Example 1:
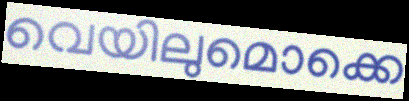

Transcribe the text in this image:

വെയിലുമൊക്കെ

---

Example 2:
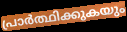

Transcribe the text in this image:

പ്രാർത്ഥിക്കുകയും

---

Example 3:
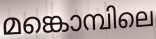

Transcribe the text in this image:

മങ്കൊമ്പിലെ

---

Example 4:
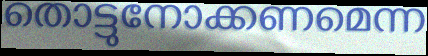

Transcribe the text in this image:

തൊട്ടുനോക്കണമെന്ന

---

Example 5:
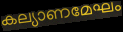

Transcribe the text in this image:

കല്യാണമേഘം